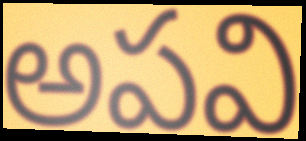
అపవి